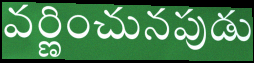
వర్ణించునపుడు